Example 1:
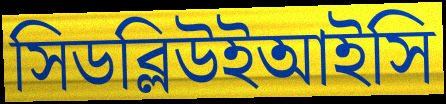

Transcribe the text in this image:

সিডব্লিউইআইসি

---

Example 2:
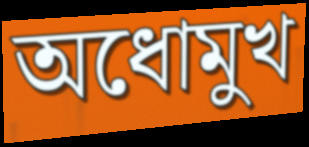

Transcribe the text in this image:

অধোমুখ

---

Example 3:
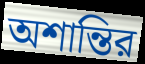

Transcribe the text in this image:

অশান্তির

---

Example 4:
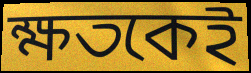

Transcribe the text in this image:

ক্ষতকেই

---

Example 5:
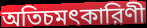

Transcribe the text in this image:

অতিচমৎকারিণী